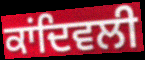
ਕਾਂਦਿਵਲੀ